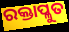
ରକ୍ତାପ୍ଳୁତ